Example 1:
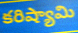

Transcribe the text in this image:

కరిష్యామి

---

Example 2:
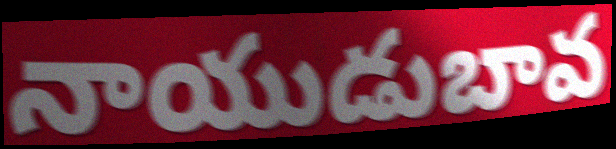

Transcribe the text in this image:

నాయుడుబావ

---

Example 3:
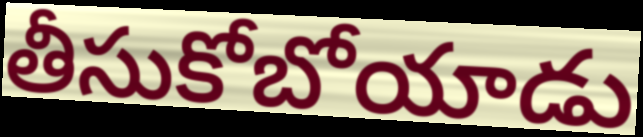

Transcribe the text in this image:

తీసుకోబోయాడు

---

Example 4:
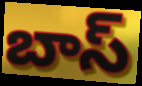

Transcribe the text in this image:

బాస్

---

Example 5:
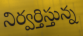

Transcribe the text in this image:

నిర్వర్తిస్తున్న